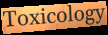
Toxicology